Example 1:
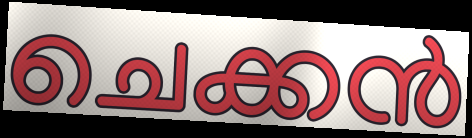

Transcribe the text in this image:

ചെക്കൻ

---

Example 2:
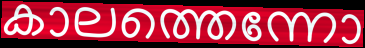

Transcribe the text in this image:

കാലത്തെന്നോ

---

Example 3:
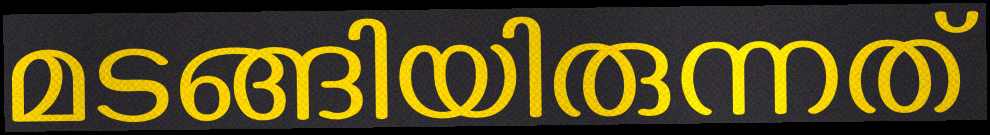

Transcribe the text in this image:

മടങ്ങിയിരുന്നത്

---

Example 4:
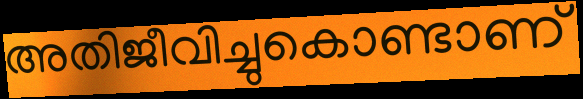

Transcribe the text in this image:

അതിജീവിച്ചുകൊണ്ടാണ്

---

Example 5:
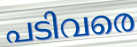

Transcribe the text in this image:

പടിവരെ